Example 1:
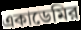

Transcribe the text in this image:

একাডেমির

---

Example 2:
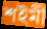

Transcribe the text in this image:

শইমী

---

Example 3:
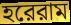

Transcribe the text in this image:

হরেরাম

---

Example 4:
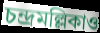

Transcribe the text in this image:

চন্দ্রমল্লিকাও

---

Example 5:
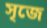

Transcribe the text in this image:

সৃজে